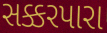
સક્કરપારા